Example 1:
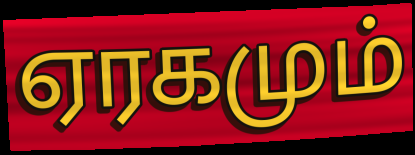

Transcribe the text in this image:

ஏரகமும்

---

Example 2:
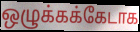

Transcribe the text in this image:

ஒழுக்கக்கேடாக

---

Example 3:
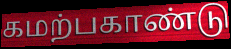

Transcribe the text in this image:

கமற்பகாண்டு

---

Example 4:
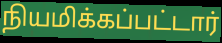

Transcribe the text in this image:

நியமிக்கப்பட்டார்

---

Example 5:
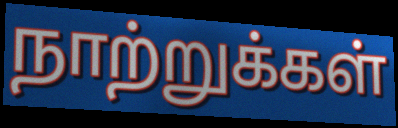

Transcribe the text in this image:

நாற்றுக்கள்